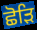
ਛੋੜਿ